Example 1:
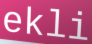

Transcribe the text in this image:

ekli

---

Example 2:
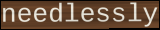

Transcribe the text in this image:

needlessly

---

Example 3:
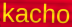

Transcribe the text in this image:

kacho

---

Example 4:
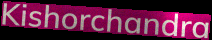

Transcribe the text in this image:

Kishorchandra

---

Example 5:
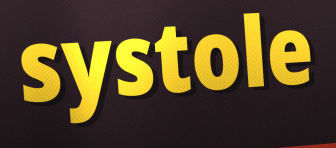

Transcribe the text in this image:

systole